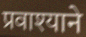
प्रवाश्याने